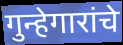
गुन्हेगारांचे